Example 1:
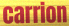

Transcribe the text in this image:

carrion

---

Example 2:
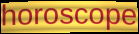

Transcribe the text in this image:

horoscope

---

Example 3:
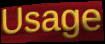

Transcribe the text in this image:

Usage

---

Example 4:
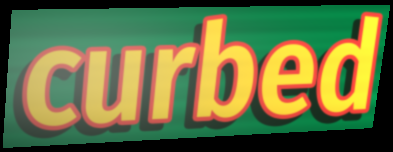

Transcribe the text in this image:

curbed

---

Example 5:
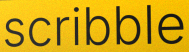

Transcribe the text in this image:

scribble